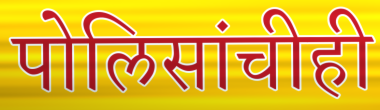
पोलिसांचीही